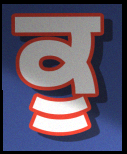
ਕੂ